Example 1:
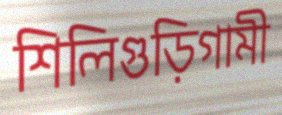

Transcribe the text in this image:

শিলিগুড়িগামী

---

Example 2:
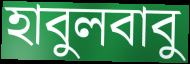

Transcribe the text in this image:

হাবুলবাবু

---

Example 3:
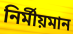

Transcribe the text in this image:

নির্মীয়মান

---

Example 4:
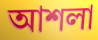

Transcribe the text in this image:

আশলা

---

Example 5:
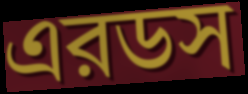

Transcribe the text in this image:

এরডস